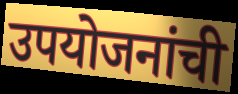
उपयोजनांची